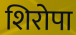
शिरोपा